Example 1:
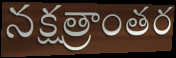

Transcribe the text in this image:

నక్షత్రాంతర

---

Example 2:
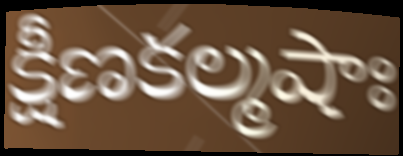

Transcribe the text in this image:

క్షీణకల్మషాః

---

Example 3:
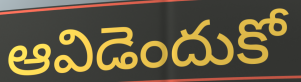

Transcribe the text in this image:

ఆవిడెందుకో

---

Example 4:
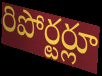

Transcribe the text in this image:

రిపోర్టర్లూ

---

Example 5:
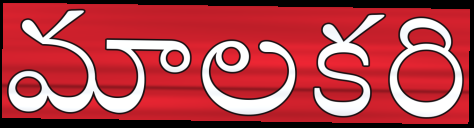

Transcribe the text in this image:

మాలకరి